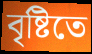
বৃষ্টিতে